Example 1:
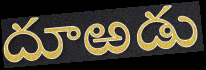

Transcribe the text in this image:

దూఱడు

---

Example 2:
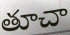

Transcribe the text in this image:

తూచా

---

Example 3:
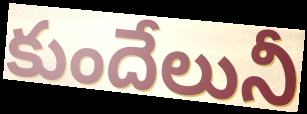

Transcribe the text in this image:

కుందేలునీ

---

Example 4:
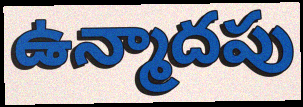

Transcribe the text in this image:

ఉన్మాదపు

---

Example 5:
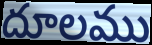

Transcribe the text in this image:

దూలము